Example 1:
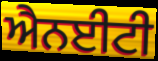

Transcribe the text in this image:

ਐਨਈਟੀ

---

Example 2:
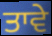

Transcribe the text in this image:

ਤਾਵੇ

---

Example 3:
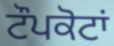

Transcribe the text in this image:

ਟੌਪਕੋਟਾਂ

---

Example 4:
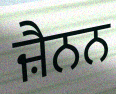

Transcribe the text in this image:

ਜ਼ੈਨਨ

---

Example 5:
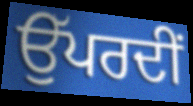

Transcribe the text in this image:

ਉੱਪਰਦੀਂ